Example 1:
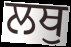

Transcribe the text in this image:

ਲਥੁ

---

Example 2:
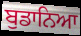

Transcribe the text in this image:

ਬੁਡਾਨਿਆ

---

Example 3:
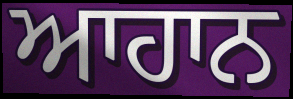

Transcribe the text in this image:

ਆਹਾਨ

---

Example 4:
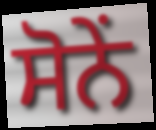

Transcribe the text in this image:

ਸੋਨੇਂ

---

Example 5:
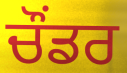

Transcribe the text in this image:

ਚੌਂਡਰ